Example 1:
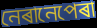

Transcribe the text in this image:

নেৰানেপেৰা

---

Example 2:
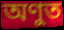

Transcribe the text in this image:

অণুত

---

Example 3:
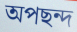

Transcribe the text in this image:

অপছন্দ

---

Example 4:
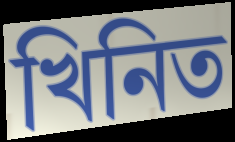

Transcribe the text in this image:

খিনিত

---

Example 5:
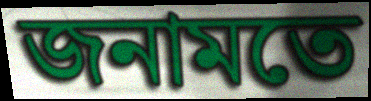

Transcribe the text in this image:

জনামতে